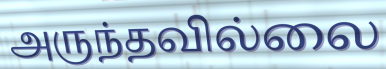
அருந்தவில்லை